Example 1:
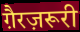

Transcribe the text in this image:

ग़ैरज़रूरी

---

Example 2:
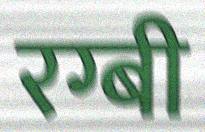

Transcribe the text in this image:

रग्बी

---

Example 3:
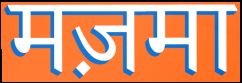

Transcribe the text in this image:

मज़मा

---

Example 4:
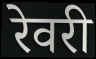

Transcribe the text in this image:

रेवरी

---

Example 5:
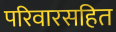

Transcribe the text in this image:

परिवारसहित